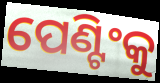
ପେଣ୍ଟିଂକୁ